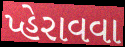
પ્હેરાવવા